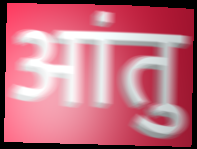
आंतु